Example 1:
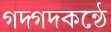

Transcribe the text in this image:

গদ্গদকন্ঠে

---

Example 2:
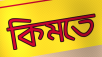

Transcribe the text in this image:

কিমতে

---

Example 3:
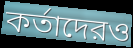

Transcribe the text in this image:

কর্তাদেরও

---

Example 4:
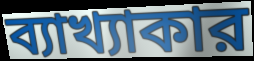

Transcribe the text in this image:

ব্যাখ্যাকার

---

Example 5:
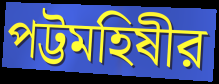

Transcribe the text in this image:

পট্টমহিষীর